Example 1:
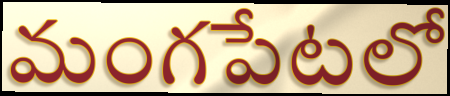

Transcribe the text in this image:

మంగపేటలో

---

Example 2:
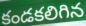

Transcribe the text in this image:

కండకలిగిన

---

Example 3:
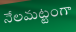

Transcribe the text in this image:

నేలమట్టంగా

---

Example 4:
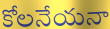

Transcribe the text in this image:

కోలనేయనా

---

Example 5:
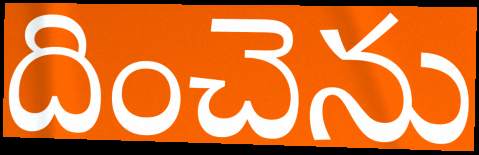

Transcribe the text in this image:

దించెను